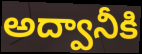
అద్వానీకి